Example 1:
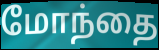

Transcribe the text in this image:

மோந்தை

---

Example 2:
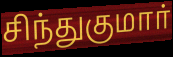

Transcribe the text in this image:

சிந்துகுமார்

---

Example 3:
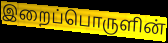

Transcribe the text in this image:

இறைப்பொருளின்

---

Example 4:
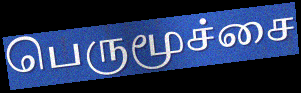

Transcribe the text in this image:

பெருமூச்சை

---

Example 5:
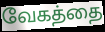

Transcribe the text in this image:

வேகத்தை